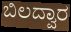
ಬಿಲದ್ವಾರ